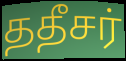
ததீசர்